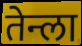
तेन्ला